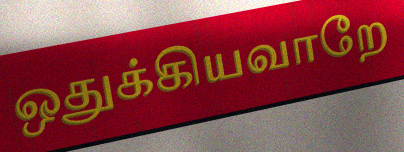
ஒதுக்கியவாறே